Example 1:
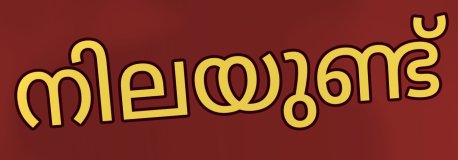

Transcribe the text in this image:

നിലയുണ്ട്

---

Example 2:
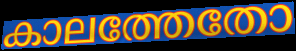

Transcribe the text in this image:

കാലത്തേതോ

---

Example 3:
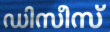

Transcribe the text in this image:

ഡിസീസ്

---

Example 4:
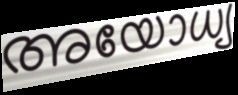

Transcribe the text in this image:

അയോധ്യ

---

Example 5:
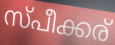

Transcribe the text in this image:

സ്പീക്കര്